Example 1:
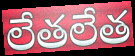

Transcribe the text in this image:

లేతలేత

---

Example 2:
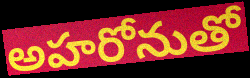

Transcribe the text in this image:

అహరోనుతో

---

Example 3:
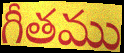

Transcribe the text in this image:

గీతము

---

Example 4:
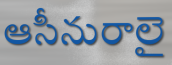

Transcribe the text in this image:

ఆసీనురాలై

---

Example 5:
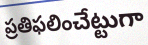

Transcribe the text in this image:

ప్రతిఫలించేట్టుగా